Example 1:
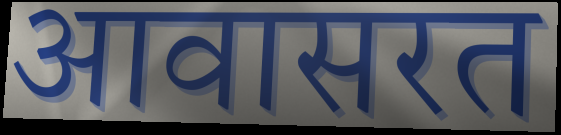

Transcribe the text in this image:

आवासरत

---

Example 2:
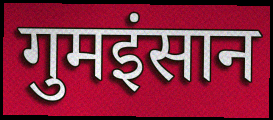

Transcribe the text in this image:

गुमइंसान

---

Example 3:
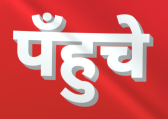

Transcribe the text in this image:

पँहुचे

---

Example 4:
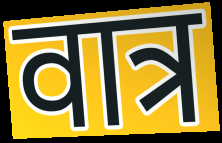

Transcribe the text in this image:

वात्र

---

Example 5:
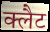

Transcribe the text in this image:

क्लैट